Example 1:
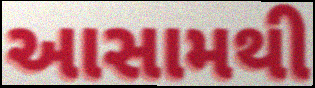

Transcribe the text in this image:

આસામથી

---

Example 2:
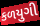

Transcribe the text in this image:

કળયુગી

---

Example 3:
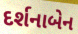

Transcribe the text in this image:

દર્શનાબેન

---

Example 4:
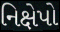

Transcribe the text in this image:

નિક્ષેપો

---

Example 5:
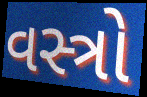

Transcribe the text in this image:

વસ્ત્રો